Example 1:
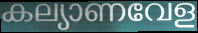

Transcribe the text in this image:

കല്യാണവേള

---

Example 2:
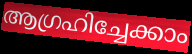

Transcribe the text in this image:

ആഗ്രഹിച്ചേക്കാം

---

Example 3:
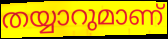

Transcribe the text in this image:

തയ്യാറുമാണ്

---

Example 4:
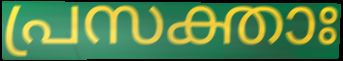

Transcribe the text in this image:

പ്രസക്താഃ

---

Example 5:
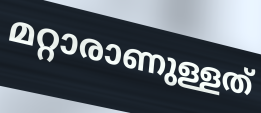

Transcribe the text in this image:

മറ്റാരാണുള്ളത്